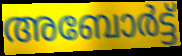
അബോർട്ട്